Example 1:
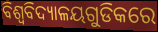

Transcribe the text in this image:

ବିଶ୍ଵବିଦ୍ୟାଳୟଗୁଡିକରେ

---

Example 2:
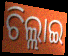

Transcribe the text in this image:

ଚିଲ୍ଲାଇ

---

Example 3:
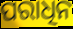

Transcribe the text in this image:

ପରାଧିନ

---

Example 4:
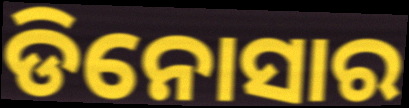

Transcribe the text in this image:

ଡିନୋସାର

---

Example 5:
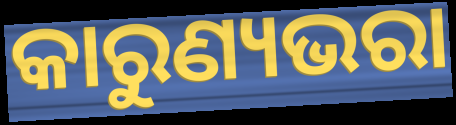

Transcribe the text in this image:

କାରୁଣ୍ୟଭରା